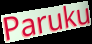
Paruku